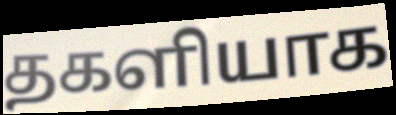
தகளியாக